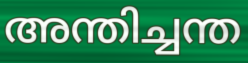
അന്തിച്ചന്ത